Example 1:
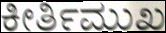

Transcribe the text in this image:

ಕೀರ್ತಿಮುಖ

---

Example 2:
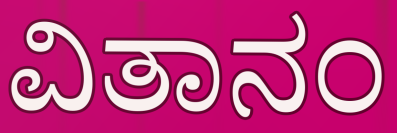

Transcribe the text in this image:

ವಿತಾನಂ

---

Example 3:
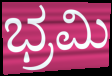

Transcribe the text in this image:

ಭ್ರಮಿ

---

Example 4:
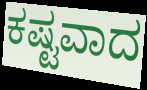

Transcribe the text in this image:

ಕಷ್ಟವಾದ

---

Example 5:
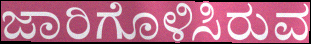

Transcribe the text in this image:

ಜಾರಿಗೊಳಿಸಿರುವ